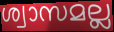
ശ്വാസമല്ല